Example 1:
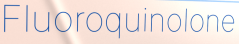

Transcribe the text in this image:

Fluoroquinolone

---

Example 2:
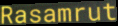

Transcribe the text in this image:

Rasamrut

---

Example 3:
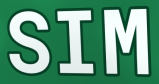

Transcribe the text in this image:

SIM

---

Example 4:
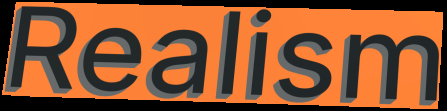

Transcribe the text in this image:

Realism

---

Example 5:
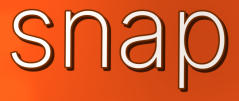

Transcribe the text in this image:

snap